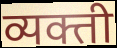
व्यक्ती